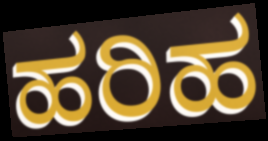
ಹರಿಹ